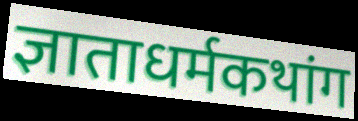
ज्ञाताधर्मकथांग